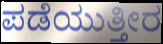
ಪಡೆಯುತ್ತೀರ